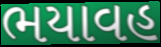
ભયાવહ